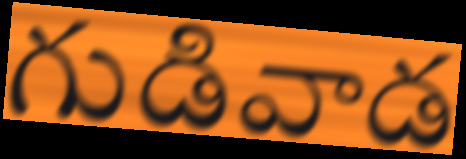
గుడివాడ